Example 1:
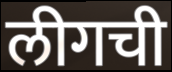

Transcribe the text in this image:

लीगची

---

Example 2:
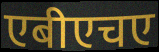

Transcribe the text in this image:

एबीएचए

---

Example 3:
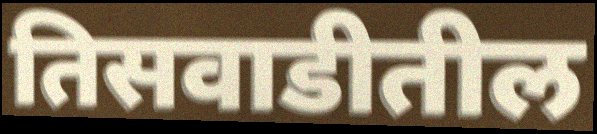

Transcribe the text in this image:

तिसवाडीतील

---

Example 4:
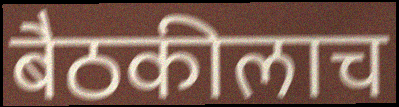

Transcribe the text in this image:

बैठकीलाच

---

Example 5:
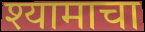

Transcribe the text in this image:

श्यामाचा